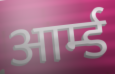
आर्म्ड